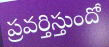
ప్రవర్తిస్తుందో